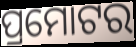
ପ୍ରମୋଟର